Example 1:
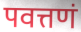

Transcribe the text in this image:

पवत्तणं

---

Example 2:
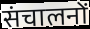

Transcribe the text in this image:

संचालनों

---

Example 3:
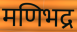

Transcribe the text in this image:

मणिभद्र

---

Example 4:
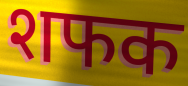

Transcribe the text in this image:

शफक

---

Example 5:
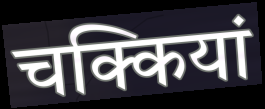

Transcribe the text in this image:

चक्कियां